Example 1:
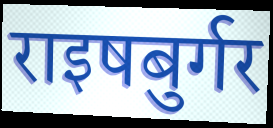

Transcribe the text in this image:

राइषबुर्गर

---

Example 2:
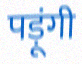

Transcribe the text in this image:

पड़ूंगी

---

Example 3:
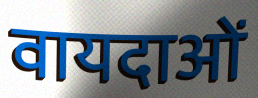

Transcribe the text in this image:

वायदाओं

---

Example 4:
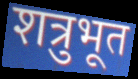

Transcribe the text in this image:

शत्रुभूत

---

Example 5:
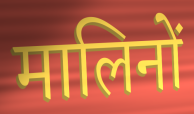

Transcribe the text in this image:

मालिनों